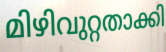
മിഴിവുറ്റതാക്കി